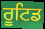
ਰੂਟਿਡ